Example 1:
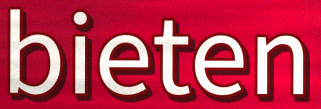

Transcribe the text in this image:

bieten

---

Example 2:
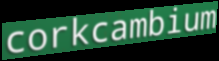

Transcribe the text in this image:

corkcambium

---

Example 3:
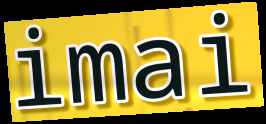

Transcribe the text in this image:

imai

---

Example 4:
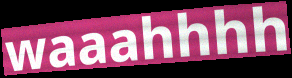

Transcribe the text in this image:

waaahhhh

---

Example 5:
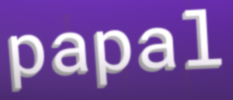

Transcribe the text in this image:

papal